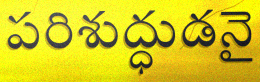
పరిశుద్ధుడనై